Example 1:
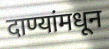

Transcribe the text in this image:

दाण्यांमधून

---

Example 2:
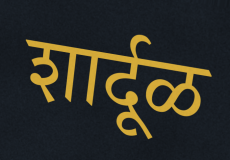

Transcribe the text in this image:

शार्दूळ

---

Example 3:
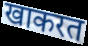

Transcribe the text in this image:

खाकरत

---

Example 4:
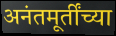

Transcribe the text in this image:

अनंतमूर्तींच्या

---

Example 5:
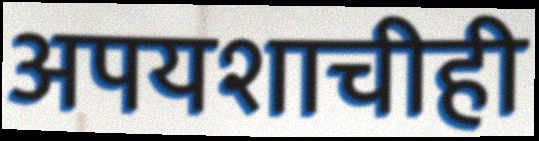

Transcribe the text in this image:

अपयशाचीही